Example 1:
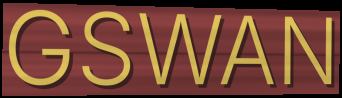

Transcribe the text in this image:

GSWAN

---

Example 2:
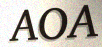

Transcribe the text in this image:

AOA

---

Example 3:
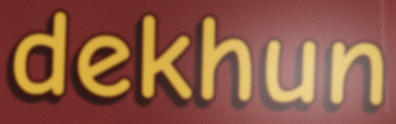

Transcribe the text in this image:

dekhun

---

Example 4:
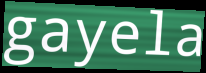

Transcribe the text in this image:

gayela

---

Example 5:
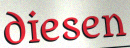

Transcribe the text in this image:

diesen